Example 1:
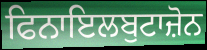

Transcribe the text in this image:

ਫਿਨਾਇਲਬੁਟਾਜ਼ੋਨ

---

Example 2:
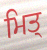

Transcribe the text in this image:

ਮਿਤ੍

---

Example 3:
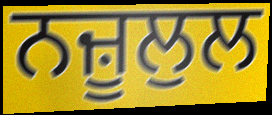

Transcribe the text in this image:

ਨਜ਼ੂਲੁਲ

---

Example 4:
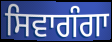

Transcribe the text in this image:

ਸਿਵਾਗੰਗਾ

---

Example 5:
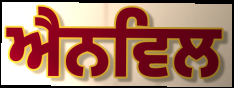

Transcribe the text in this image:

ਐਨਵਿਲ